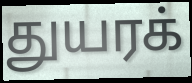
துயரக்